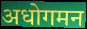
अधोगमन